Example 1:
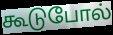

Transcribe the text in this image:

கூடுபோல்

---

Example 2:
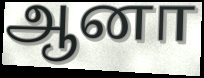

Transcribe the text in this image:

ஆனா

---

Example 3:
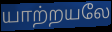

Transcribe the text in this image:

யாற்றயலே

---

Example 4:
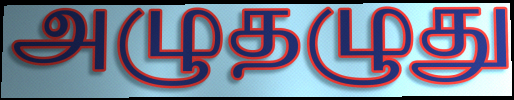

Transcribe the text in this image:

அழுதழுது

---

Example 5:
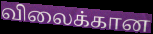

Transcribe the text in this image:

விலைக்கான